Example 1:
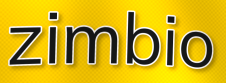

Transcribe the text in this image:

zimbio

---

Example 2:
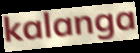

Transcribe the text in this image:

kalanga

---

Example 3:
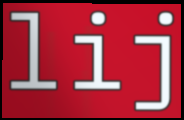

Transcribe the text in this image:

lij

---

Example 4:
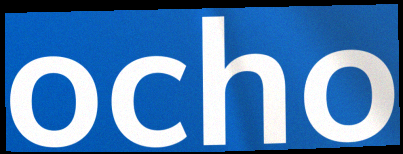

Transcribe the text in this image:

ocho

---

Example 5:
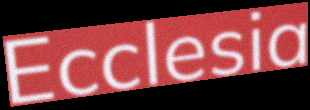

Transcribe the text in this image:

Ecclesia